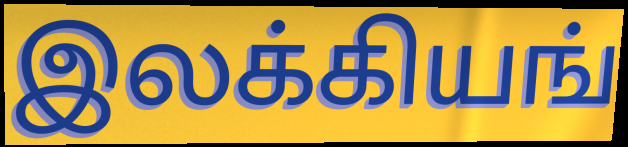
இலக்கியங்